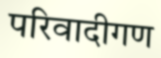
परिवादीगण